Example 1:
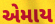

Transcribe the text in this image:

એમાય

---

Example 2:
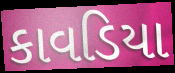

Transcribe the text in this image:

કાવડિયા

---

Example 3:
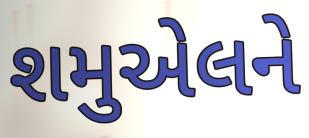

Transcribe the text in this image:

શમુએલને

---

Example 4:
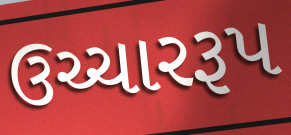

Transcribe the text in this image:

ઉચ્ચારરૂપ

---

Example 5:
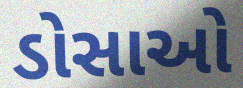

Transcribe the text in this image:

ડોસાઓ